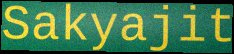
Sakyajit